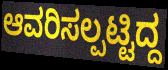
ಆವರಿಸಲ್ಪಟ್ಟಿದ್ದ